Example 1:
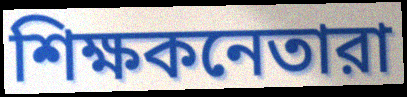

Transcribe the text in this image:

শিক্ষকনেতারা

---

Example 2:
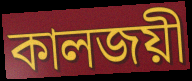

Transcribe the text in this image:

কালজয়ী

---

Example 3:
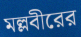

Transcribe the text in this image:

মল্লবীরের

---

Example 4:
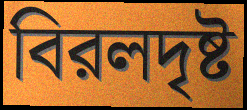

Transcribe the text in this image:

বিরলদৃষ্ট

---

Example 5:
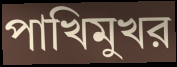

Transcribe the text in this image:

পাখিমুখর